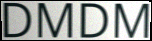
DMDM